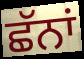
ਛੱਨਾਂ